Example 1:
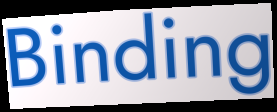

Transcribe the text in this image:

Binding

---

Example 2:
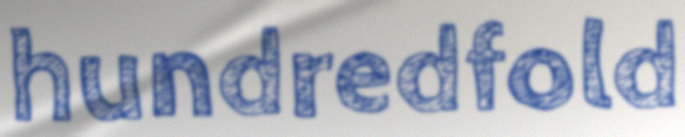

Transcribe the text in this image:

hundredfold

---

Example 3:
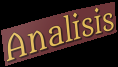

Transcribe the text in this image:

Analisis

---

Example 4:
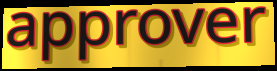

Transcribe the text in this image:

approver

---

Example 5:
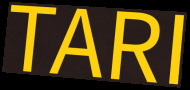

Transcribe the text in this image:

TARI